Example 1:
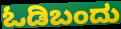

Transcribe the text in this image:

ಓಡಿಬಂದು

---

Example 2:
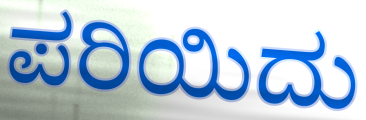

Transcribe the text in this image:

ಪರಿಯಿದು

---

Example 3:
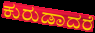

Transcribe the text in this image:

ಕುರುಡಾದರೆ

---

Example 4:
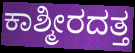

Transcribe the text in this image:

ಕಾಶ್ಮೀರದತ್ತ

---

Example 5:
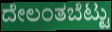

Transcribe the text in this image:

ದೇಲಂತಬೆಟ್ಟು